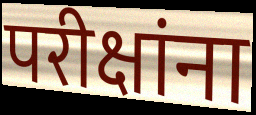
परीक्षांना